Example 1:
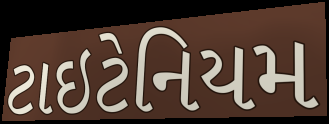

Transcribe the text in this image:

ટાઇટેનિયમ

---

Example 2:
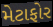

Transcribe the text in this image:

મેટાફોર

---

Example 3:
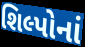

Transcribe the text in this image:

શિલ્પોનાં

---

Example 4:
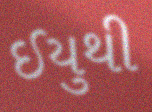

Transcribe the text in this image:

ઈયુથી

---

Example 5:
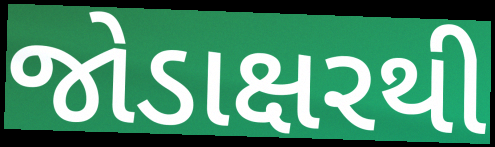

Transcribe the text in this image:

જોડાક્ષરથી